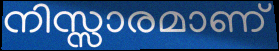
നിസ്സാരമാണ്